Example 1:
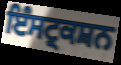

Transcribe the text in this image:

ਇੰਸਟ੍ਰਕਸ਼ਨ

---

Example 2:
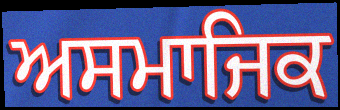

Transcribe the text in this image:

ਅਸਮਾਜਿਕ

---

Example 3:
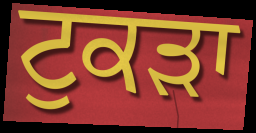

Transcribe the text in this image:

ਟੁਕੜਾ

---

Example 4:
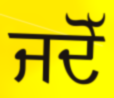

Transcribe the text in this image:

ਜਦੋੱ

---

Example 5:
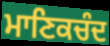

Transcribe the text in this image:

ਮਾਣਿਕਚੰਦ